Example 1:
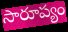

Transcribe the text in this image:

సారూప్యం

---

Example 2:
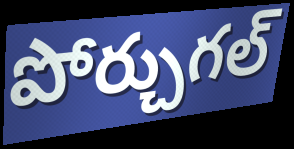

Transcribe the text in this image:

పోర్చుగల్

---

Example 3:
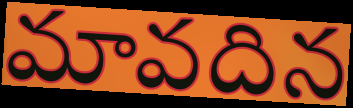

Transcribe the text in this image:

మావదిన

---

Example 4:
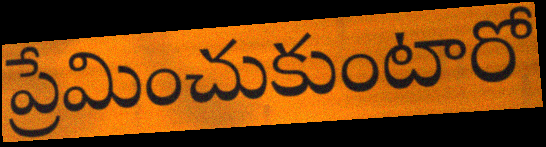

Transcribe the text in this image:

ప్రేమించుకుంటారో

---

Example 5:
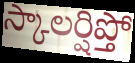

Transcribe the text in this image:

స్కాలర్షిప్తో